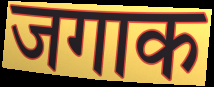
जगाक